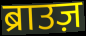
ब्राउज़